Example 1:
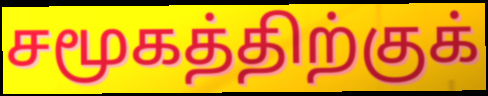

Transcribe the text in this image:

சமூகத்திற்குக்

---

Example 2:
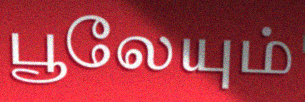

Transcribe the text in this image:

பூலேயும்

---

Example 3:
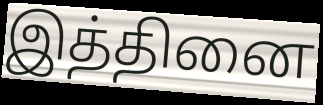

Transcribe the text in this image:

இத்தினை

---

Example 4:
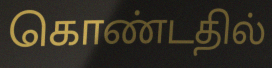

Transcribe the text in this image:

கொண்டதில்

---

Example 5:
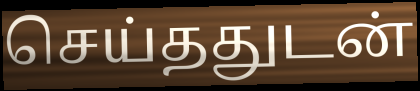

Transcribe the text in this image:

செய்ததுடன்